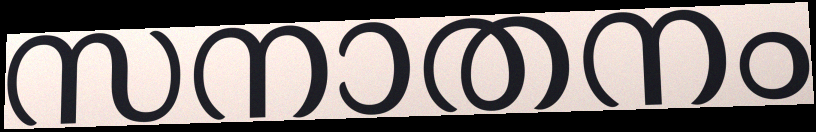
സനാതനം